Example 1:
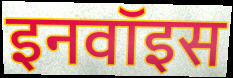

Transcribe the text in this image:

इनवॉइस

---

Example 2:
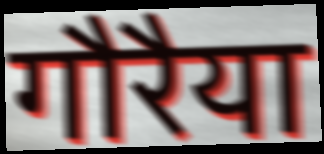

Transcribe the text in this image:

गौरैया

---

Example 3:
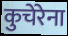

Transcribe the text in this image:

कुचेरेना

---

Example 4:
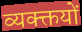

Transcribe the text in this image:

व्यक्क्तयों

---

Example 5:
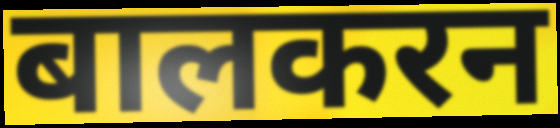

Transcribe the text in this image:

बालकरन